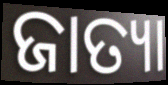
ଜାତ୍ୟା